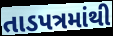
તાડપત્રમાંથી